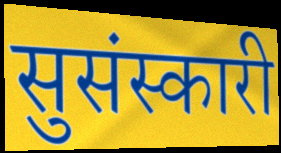
सुसंस्कारी